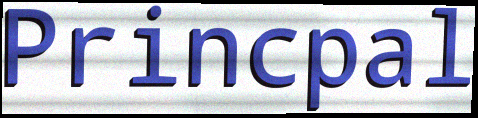
Princpal